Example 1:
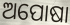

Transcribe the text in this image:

ଅପୋଷା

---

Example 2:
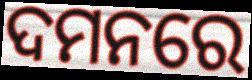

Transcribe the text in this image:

ଦମନରେ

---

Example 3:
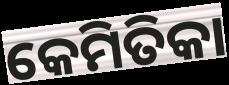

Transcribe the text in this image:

କେମିତିକା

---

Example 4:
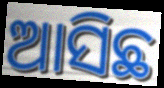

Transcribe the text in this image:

ଆସିଛ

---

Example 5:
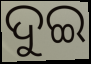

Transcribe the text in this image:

ଦୁଇ